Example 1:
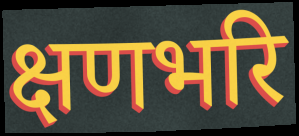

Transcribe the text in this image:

क्षणभरि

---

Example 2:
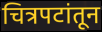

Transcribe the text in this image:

चित्रपटांतून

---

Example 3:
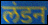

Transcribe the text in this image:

लंडन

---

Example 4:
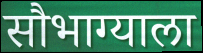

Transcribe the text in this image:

सौभाग्याला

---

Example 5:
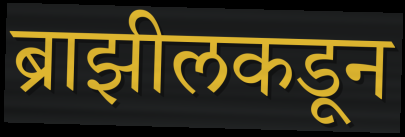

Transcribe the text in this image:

ब्राझीलकडून